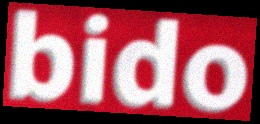
bido